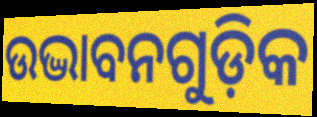
ଉଦ୍ଭାବନଗୁଡ଼ିକ